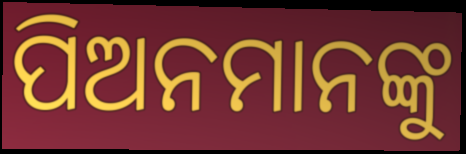
ପିଅନମାନଙ୍କୁ